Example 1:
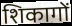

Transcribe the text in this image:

शिकागों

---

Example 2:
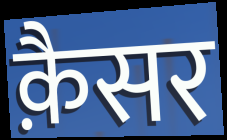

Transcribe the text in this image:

क़ैसर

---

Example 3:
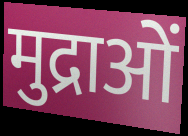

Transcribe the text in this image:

मुद्राओं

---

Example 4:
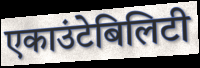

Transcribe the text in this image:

एकाउंटेबिलिटी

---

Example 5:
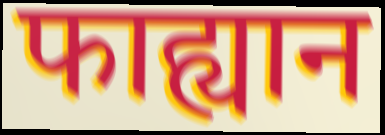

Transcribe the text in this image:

फाह्यान